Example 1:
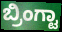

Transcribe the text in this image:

ಬ್ರಿಂಗ್ಟಾ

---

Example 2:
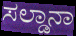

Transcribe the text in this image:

ಸಲ್ಡಾನಾ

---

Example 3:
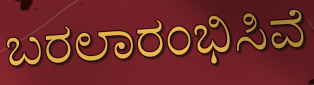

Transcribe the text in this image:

ಬರಲಾರಂಭಿಸಿವೆ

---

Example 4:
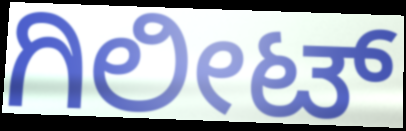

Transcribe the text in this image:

ಗಿಲೀಟ್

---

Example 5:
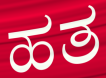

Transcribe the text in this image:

ಹತ